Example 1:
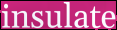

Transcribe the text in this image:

insulate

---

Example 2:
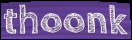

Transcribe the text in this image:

thoonk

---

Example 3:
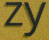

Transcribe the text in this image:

zy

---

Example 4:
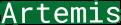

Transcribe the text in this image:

Artemis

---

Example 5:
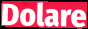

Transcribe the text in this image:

Dolare